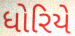
ધોરિયે